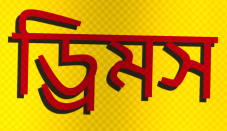
ড্রিমস